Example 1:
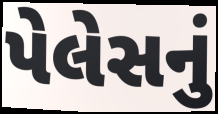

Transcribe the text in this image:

પેલેસનું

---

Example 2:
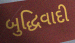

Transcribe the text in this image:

બુદ્ધિવાદી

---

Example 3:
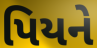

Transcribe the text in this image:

પિયને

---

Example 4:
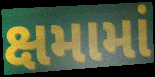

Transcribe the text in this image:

ક્ષમામાં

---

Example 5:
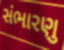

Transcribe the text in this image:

સંભારણુ